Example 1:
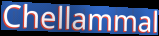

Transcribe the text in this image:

Chellammal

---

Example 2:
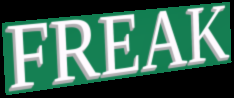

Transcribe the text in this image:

FREAK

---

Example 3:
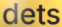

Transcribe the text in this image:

dets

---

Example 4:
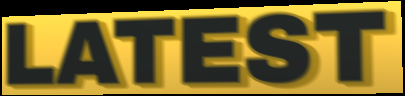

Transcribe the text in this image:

LATEST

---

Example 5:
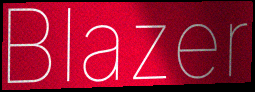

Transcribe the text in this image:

Blazer